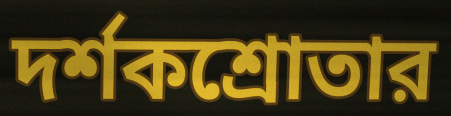
দর্শকশ্রোতার